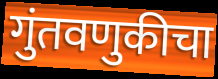
गुंतवणुकीचा